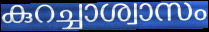
കുറച്ചാശ്വാസം